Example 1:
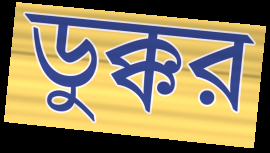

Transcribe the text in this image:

ডুক্কর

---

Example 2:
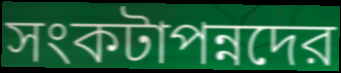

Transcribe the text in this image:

সংকটাপন্নদের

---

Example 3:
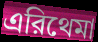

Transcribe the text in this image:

এরিথেমা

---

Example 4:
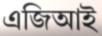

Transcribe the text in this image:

এজিআই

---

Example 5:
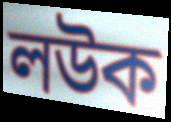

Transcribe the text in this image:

লউক